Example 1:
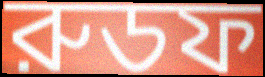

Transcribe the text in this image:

রুডফ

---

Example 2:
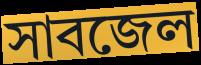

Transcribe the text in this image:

সাবজেল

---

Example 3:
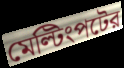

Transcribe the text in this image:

মেল্টিংপটের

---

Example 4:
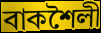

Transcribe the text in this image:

বাকশৈলী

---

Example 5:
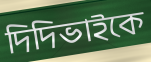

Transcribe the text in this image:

দিদিভাইকে